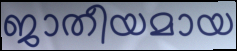
ജാതീയമായ